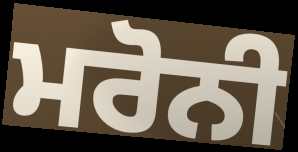
ਮਰੋਨੀ